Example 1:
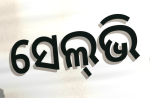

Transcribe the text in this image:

ସେଲ୍‌ଭି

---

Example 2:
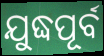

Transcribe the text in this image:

ଯୁଦ୍ଧପୂର୍ବ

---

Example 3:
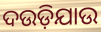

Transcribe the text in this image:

ଦଉଡ଼ିଯାଉ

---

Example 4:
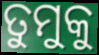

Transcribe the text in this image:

ତୁମୁକୁ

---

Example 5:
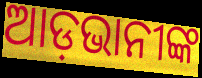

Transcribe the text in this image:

ଆଡ଼ଭାନୀଙ୍କ